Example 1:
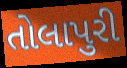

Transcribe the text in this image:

તોલાપુરી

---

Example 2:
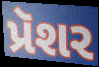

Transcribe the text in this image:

પ્રૅશર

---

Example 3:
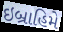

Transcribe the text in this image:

ઇબ્રાહિમે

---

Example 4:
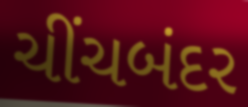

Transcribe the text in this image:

ચીંચબંદર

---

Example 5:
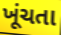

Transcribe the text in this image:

ખૂંચતા